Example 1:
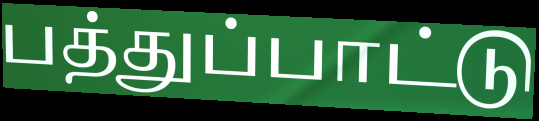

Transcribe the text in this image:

பத்துப்பாட்டு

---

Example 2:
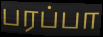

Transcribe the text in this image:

பரப்பா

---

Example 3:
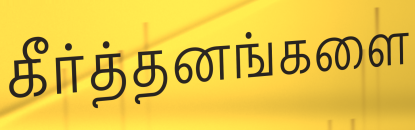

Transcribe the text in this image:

கீர்த்தனங்களை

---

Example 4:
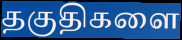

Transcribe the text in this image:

தகுதிகளை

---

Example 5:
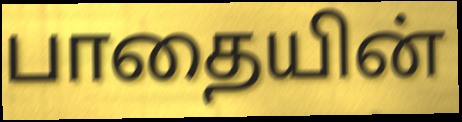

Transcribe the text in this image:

பாதையின்